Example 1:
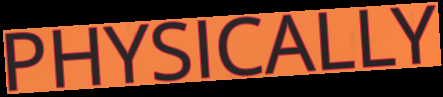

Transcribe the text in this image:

PHYSICALLY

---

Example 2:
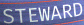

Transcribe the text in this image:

STEWARD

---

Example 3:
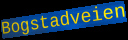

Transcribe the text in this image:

Bogstadveien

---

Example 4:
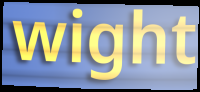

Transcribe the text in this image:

wight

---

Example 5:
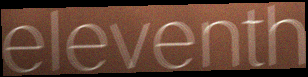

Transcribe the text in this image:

eleventh